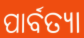
ପାର୍ବତ୍ୟା